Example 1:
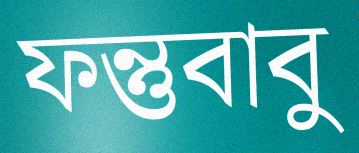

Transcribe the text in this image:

ফন্তুবাবু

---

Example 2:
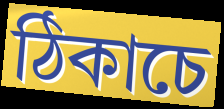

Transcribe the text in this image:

ঠিকাচে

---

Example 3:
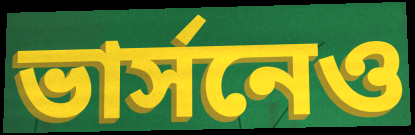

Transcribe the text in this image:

ভার্সনেও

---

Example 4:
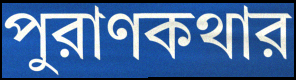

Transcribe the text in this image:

পুরাণকথার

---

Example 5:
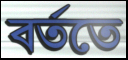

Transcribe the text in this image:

বর্ততে